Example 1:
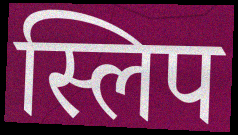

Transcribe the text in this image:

स्लिप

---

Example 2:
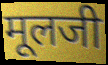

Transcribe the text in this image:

मूलजी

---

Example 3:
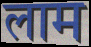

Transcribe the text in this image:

लाम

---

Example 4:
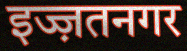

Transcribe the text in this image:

इज्ज़तनगर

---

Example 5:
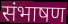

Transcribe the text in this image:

संभाषण